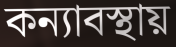
কন্যাবস্থায়